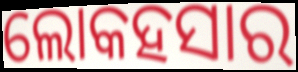
ଲୋକହସାର